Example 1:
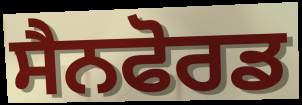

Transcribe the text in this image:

ਸੈਨਫੋਰਡ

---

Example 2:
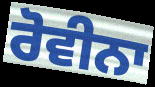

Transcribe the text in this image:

ਰੋਵੀਨਾ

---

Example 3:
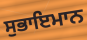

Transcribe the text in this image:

ਸੁਭਾਇਮਾਨ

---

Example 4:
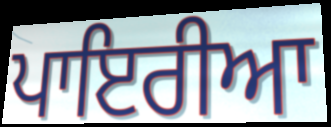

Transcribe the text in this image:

ਪਾਇਰੀਆ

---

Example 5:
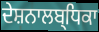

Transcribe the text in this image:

ਦੇਸ਼ਨਾਲਬ੍ਧਿਕਾ